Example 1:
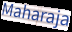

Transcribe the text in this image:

Maharaja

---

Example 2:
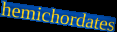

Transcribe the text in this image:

hemichordates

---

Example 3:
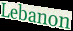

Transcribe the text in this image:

Lebanon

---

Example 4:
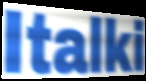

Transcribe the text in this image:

Italki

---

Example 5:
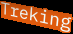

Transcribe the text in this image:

Treking